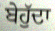
ਬੇਹੁੱਦਾ